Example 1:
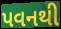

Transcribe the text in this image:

પવનથી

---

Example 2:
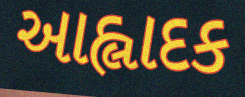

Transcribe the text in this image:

આહ્લાદક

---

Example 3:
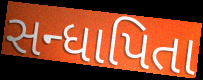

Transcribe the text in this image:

સન્ધાપિતા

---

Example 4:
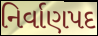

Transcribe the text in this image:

નિર્વાણપદ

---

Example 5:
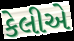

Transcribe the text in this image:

કેલીએ